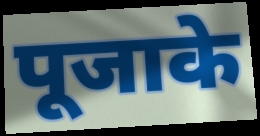
पूजाके